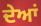
ਦੇਆਂ